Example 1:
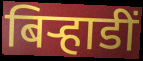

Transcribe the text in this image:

बिर्‍हाडीं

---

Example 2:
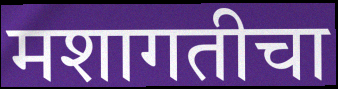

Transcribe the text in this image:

मशागतीचा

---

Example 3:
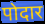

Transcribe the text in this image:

पोदार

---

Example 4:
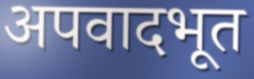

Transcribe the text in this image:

अपवादभूत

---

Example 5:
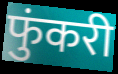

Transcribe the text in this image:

फुंकरी